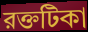
রক্তটিকা